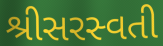
શ્રીસરસ્વતી